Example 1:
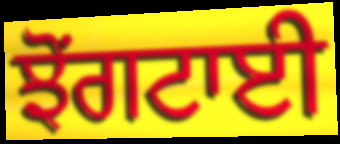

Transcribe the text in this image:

ਝੋਂਗਟਾਈ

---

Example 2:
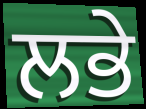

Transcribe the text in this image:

ਲਭੇ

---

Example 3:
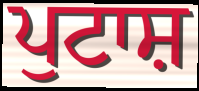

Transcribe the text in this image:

ਪੁਟਾਸ਼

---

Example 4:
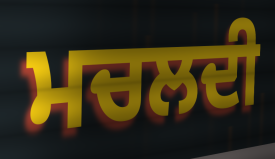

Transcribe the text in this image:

ਮਚਲਦੀ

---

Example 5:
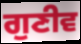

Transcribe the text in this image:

ਗੁਣੀਵ